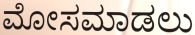
ಮೋಸಮಾಡಲು